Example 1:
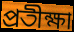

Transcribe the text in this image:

প্রতীক্ষা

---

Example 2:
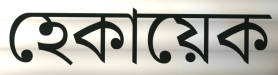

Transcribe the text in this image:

হেকায়েক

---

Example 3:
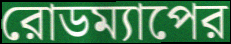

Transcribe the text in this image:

রোডম্যাপের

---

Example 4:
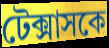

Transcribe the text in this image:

টেক্সাসকে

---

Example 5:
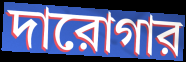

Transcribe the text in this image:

দারোগার